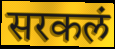
सरकलं